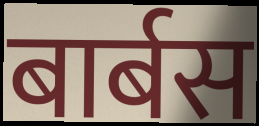
बार्बस